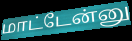
மாட்டேன்னு